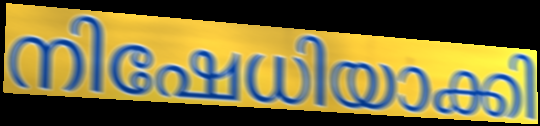
നിഷേധിയാക്കി